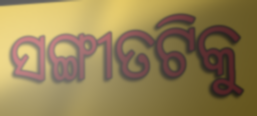
ସଙ୍ଗୀତଟିକୁ